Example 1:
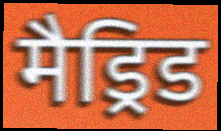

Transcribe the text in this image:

मैड्रिड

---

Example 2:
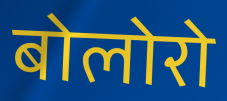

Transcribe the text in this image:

बोलोरो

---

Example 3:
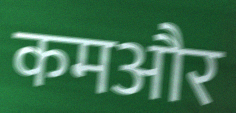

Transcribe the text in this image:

कमऔर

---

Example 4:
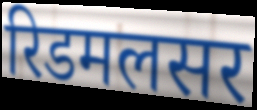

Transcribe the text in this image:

रिडमलसर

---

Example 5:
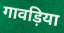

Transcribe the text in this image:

गावड़िया